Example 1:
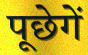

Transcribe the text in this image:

पूछेगें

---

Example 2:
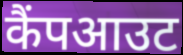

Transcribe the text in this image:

कैंपआउट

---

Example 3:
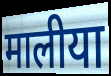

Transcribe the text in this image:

मालीया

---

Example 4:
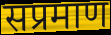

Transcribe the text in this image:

सप्रमाण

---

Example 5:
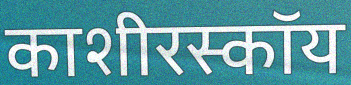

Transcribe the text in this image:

काशीरस्कॉय